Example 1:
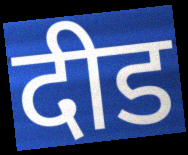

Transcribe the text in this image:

दीड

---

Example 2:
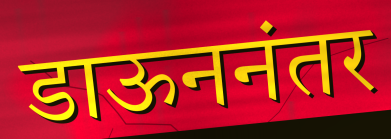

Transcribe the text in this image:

डाऊननंतर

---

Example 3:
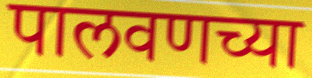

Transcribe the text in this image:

पालवणच्या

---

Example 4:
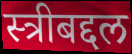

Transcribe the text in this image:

स्त्रीबद्दल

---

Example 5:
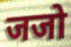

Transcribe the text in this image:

जजो